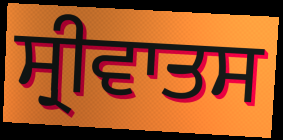
ਸ੍ਰੀਵਾਤਸ